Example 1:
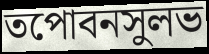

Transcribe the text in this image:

তপোবনসুলভ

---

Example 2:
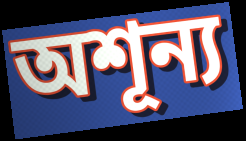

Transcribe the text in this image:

অশূন্য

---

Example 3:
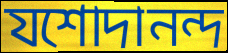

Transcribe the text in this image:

যশোদানন্দ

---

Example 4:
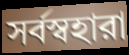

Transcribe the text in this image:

সর্বস্বহারা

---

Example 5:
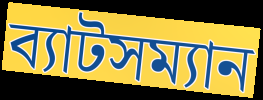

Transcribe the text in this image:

ব্যাটসম্যান